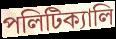
পলিটিক্যালি